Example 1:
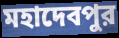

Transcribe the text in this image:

মহাদেবপুর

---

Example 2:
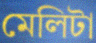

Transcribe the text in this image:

মেলিটা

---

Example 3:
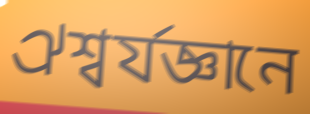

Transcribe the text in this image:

ঐশ্বর্যজ্ঞানে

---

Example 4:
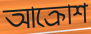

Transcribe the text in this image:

আক্রোশ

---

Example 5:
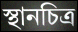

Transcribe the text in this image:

স্থানচিত্র